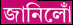
জানিলোঁ